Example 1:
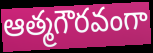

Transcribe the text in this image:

ఆత్మగౌరవంగా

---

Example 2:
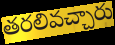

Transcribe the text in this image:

తరలివచ్చారు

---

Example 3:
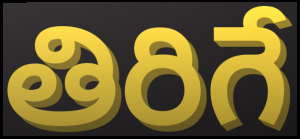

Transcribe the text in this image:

తిరిగే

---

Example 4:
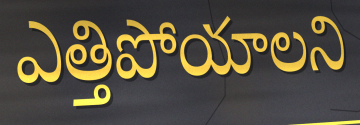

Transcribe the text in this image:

ఎత్తిపోయాలని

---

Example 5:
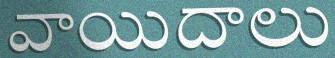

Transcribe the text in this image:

వాయిదాలు